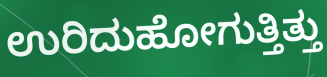
ಉರಿದುಹೋಗುತ್ತಿತ್ತು